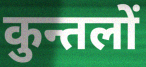
कुन्तलों